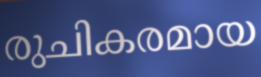
രുചികരമായ